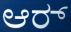
ಆರ್‍